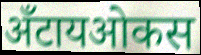
अँटायओकस